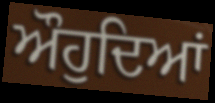
ਔਹੁਦਿਆਂ